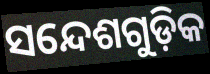
ସନ୍ଦେଶଗୁଡ଼ିକ